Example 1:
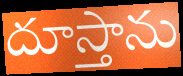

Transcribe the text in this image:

దూస్తాను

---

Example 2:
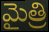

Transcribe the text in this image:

మైత్రి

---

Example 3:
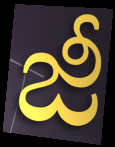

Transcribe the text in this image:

జీ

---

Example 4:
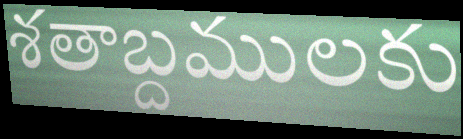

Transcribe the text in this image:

శతాబ్దములకు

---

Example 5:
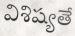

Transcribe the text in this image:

విశిష్యతే